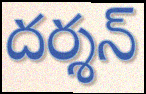
దర్శన్